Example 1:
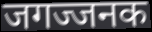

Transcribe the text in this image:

जगज्जनक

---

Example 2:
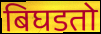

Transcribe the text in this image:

बिघडतो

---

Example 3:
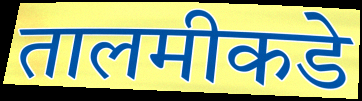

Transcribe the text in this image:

तालमीकडे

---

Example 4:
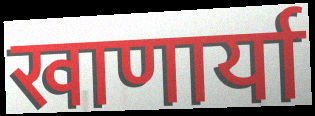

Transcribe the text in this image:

खाणार्या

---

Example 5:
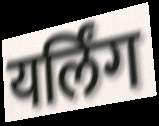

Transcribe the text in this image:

यर्लिंग